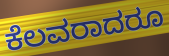
ಕೆಲವರಾದರೂ